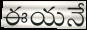
ఈయనే